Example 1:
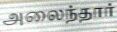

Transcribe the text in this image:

அலைந்தார்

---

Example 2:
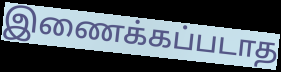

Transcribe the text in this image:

இணைக்கப்படாத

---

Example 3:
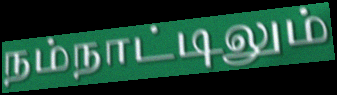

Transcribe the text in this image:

நம்நாட்டிலும்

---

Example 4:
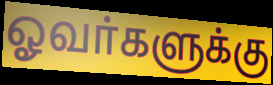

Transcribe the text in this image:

ஓவர்களுக்கு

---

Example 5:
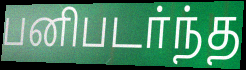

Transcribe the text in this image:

பனிபடர்ந்த